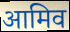
आमिव